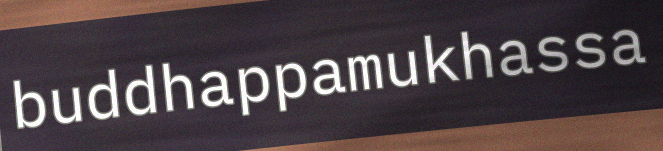
buddhappamukhassa